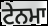
ਟੇਨਮਾ